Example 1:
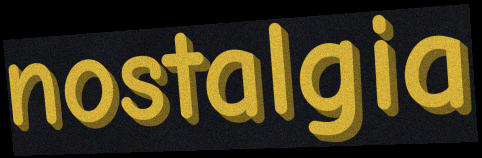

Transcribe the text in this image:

nostalgia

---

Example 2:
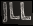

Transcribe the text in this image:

JLL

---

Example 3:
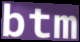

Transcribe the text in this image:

btm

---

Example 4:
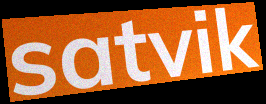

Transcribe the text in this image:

satvik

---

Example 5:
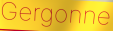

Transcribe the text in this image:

Gergonne